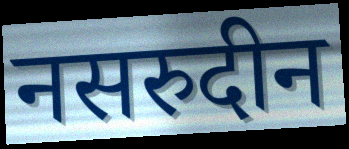
नसरुदीन